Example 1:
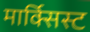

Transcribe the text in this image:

मार्क्सिस्ट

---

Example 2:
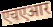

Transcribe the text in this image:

एचएआर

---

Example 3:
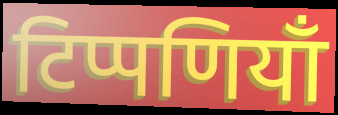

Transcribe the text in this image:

टिप्पणियाँ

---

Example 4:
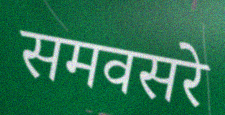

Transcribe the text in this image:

समवसरे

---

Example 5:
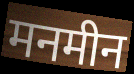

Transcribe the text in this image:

मनमीन